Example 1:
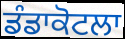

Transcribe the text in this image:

ਡੰਡਾਕੋਟਲਾ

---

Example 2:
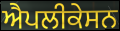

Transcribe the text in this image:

ਐਪਲੀਕੇਸਨ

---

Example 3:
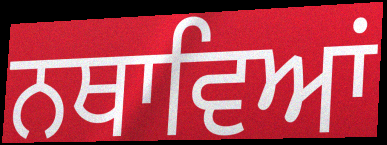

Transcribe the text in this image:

ਨਥਾਵਿਆਂ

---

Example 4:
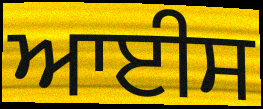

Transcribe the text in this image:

ਆਈਸ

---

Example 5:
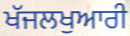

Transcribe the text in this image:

ਖੱਜਲਖੁਆਰੀ